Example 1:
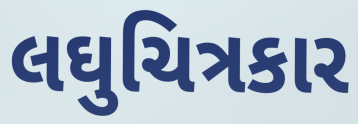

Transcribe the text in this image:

લઘુચિત્રકાર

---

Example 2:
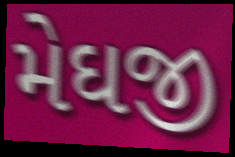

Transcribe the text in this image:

મેઘજી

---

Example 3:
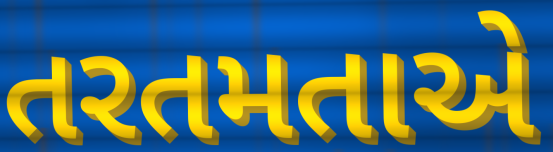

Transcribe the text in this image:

તરતમતાએ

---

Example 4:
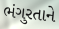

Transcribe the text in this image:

ભંગુરતાને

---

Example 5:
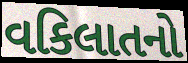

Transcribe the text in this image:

વકિલાતનો